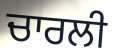
ਚਾਰਲੀ